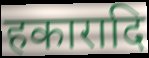
हकारादि